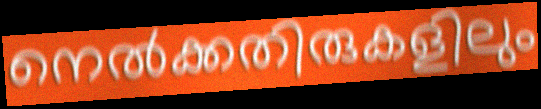
നെൽക്കതിരുകളിലും